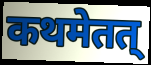
कथमेतत्